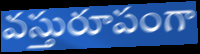
వస్తురూపంగా